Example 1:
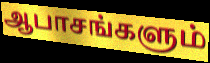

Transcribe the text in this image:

ஆபாசங்களும்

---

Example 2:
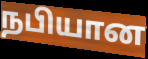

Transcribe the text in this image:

நபியான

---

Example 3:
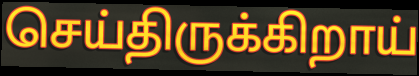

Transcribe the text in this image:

செய்திருக்கிறாய்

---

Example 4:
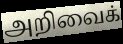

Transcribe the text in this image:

அறிவைக்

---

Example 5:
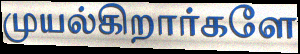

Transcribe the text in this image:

முயல்கிறார்களே